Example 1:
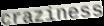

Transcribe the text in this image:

craziness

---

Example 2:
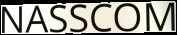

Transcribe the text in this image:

NASSCOM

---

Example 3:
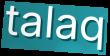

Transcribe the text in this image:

talaq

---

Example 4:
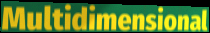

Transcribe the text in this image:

Multidimensional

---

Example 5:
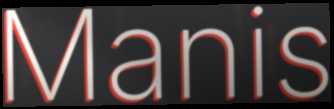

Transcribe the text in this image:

Manis